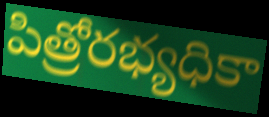
పిత్రోరభ్యధికా